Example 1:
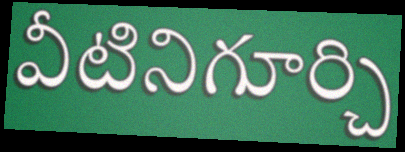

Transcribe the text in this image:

వీటినిగూర్చి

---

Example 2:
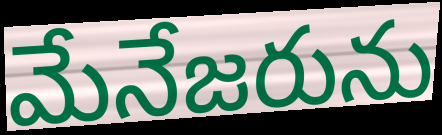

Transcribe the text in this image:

మేనేజరును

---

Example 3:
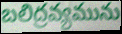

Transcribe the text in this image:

బలిద్రవ్యమును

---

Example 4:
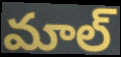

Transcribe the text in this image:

మాల్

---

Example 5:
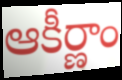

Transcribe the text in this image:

ఆకీర్ణాం